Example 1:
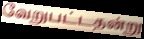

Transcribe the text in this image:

வேறுபட்டதன்று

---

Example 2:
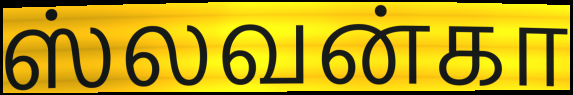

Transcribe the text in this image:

ஸ்லவன்கா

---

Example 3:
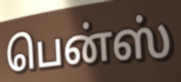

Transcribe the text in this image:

பென்ஸ்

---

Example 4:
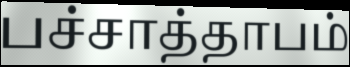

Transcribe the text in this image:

பச்சாத்தாபம்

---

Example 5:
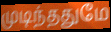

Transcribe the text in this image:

முடிந்ததுமே